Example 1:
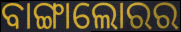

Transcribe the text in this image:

ବାଙ୍ଗାଲୋରର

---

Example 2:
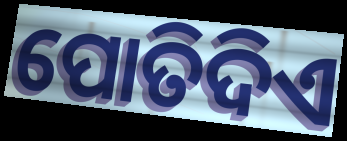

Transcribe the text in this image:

ପୋତିଦିଏ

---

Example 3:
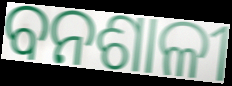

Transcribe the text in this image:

ବନଶାଳୀ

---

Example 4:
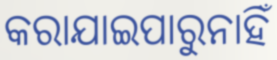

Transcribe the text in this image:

କରାଯାଇପାରୁନାହିଁ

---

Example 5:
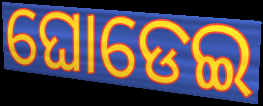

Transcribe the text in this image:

ଘୋଡେଇ